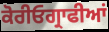
ਕੋਰੀਓਗ੍ਰਾਫੀਆਂ